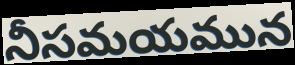
నీసమయమున